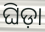
ଘିଡ଼ା